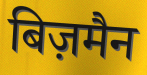
बिज़मैन